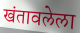
खंतावलेला